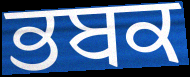
ਭਬਕ